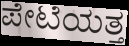
ಪೇಟೆಯತ್ತ